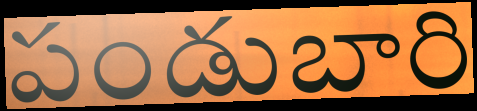
పండుబారి